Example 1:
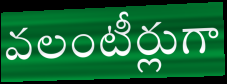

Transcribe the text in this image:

వలంటీర్లుగా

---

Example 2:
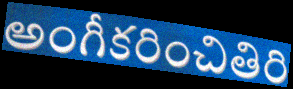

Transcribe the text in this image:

అంగీకరించితిరి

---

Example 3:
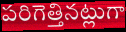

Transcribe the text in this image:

పరిగెత్తినట్లుగా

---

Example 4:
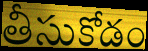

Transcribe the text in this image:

తీసుకోడం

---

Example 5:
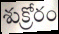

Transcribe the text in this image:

శుక్రోరం